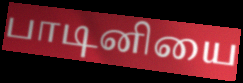
பாடினியை